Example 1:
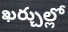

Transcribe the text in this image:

ఖర్చుల్లో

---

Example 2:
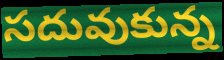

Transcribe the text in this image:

సదువుకున్న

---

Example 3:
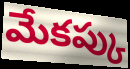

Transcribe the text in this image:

మేకప్కు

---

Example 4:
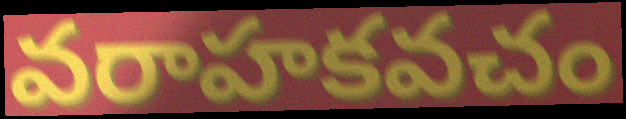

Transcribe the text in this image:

వరాహకవచం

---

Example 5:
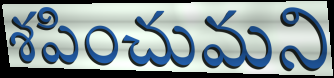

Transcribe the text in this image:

శపించుమని